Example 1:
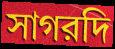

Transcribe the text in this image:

সাগরদি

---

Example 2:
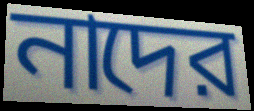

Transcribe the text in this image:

নাদের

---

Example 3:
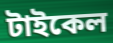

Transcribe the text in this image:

টাইকেল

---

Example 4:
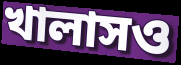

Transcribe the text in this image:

খালাসও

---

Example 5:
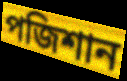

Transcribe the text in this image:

পজিশান